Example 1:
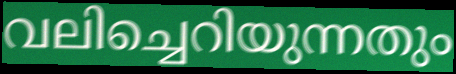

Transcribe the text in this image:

വലിച്ചെറിയുന്നതും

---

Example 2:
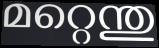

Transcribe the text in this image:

മറ്റെന്തു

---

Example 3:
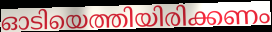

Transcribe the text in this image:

ഓടിയെത്തിയിരിക്കണം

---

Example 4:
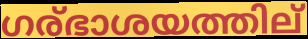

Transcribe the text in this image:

ഗര്ഭാശയത്തില്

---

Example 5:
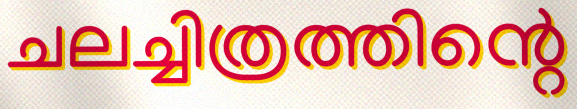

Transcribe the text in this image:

ചലച്ചിത്രത്തിന്റെ